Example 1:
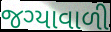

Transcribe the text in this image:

જગ્યાવાળી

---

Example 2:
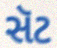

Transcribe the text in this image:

સૅટ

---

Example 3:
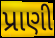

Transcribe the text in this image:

પ્રાણી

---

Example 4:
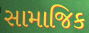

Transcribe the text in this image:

સામાજિક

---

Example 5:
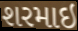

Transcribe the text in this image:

શરમાઇ